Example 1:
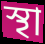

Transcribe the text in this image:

স্থা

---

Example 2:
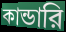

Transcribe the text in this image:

কান্ডারি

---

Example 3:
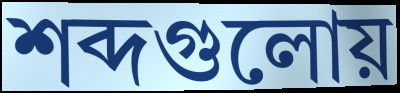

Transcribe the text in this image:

শব্দগুলোয়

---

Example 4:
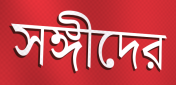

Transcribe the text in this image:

সঙ্গীদের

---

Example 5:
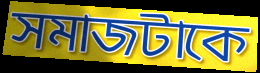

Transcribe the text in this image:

সমাজটাকে